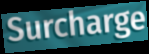
Surcharge